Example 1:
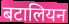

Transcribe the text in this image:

बटालियन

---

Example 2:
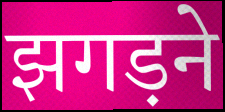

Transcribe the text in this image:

झगड़ने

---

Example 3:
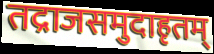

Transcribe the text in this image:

तद्राजसमुदाहृतम्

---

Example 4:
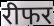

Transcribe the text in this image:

रीफर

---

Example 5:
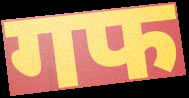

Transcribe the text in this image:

गफ